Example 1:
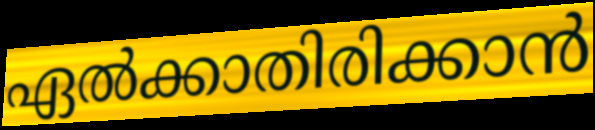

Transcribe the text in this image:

ഏൽക്കാതിരിക്കാൻ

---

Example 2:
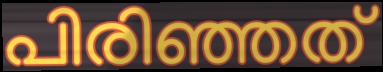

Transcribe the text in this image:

പിരിഞ്ഞത്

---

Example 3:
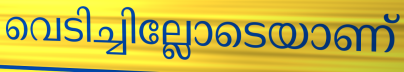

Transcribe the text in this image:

വെടിച്ചില്ലോടെയാണ്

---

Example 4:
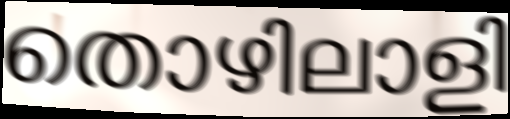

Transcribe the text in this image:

തൊഴിലാളി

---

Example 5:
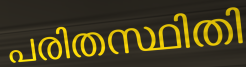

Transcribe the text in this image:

പരിതസ്ഥിതി